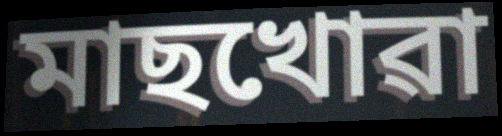
মাছখোৱা